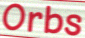
Orbs